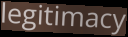
legitimacy